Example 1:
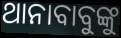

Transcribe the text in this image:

ଥାନାବାବୁଙ୍କୁ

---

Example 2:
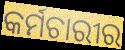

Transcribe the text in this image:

କର୍ମଚାରୀର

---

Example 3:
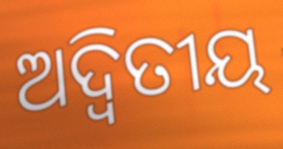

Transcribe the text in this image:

ଅଦ୍ଵିତୀୟ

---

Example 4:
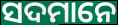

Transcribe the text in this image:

ସଦମାନେ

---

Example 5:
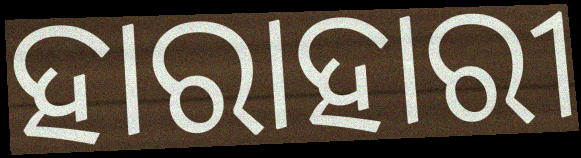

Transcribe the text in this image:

ହାରାହାରୀ